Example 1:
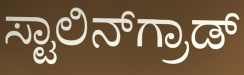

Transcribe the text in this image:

ಸ್ಟಾಲಿನ್‌ಗ್ರಾಡ್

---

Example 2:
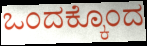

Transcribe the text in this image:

ಒಂದಕ್ಕೊಂದ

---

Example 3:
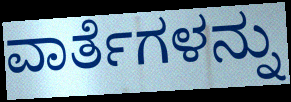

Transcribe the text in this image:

ವಾರ್ತೆಗಳನ್ನು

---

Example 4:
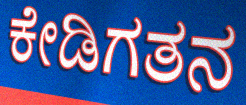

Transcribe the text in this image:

ಕೇಡಿಗತನ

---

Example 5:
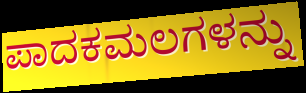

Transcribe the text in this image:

ಪಾದಕಮಲಗಳನ್ನು